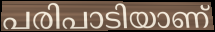
പരിപാടിയാണ്